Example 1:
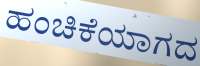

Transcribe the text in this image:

ಹಂಚಿಕೆಯಾಗದ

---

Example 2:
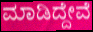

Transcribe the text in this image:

ಮಾಡಿದ್ದೇವೆ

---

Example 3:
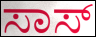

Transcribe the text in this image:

ಸಾಸ್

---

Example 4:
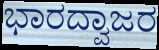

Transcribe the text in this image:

ಭಾರದ್ವಾಜರ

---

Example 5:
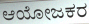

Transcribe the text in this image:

ಆಯೋಜಕರ